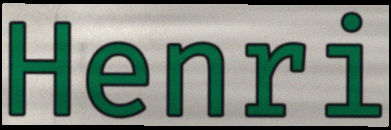
Henri